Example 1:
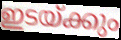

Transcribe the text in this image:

ഇടയ്ക്കും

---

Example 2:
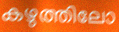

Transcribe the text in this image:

കഴുത്തിലോ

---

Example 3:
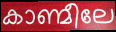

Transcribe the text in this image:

കാണ്മീലേ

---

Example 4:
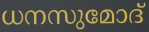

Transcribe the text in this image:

ധനസുമോദ്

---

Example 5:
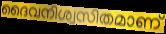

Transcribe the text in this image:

ദൈവനിശ്വസിതമാണ്